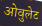
ओवुलेट